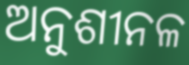
ଅନୁଶୀନଳ